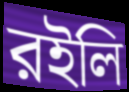
রইলি